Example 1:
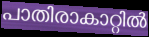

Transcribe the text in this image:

പാതിരാകാറ്റിൽ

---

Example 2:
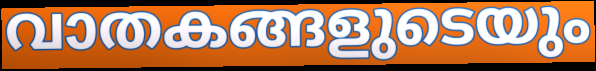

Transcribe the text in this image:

വാതകങ്ങളുടെയും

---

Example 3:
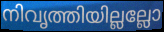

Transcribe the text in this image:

നിവൃത്തിയില്ലല്ലോ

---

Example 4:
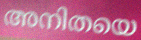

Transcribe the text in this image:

അനിതയെ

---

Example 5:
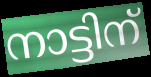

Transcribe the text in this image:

നാട്ടിന്